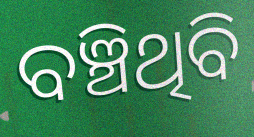
ବଞ୍ଚିଥିବି